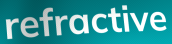
refractive